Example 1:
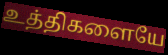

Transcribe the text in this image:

உத்திகளையே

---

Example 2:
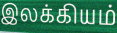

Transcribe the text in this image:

இலக்கியம்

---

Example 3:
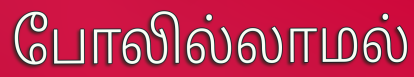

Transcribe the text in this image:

போலில்லாமல்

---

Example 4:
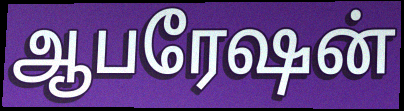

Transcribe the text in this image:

ஆபரேஷன்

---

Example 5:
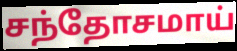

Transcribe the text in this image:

சந்தோசமாய்